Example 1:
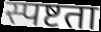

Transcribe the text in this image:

स्पष्टता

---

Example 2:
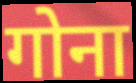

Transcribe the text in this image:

गोना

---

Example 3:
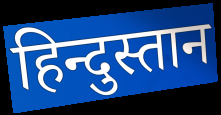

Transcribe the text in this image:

हिन्दुस्तान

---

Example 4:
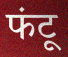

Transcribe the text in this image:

फंटू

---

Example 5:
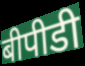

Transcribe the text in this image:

बीपीडी